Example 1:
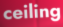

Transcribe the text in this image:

ceiling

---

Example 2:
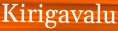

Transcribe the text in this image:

Kirigavalu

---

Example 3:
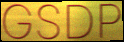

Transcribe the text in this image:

GSDP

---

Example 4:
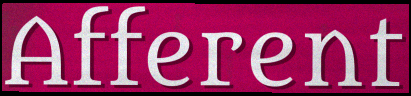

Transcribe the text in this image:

Afferent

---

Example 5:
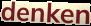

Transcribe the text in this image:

denken